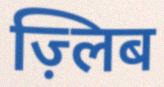
ज़्लिब